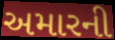
અમારની